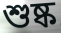
শুষ্ক